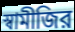
স্বামীজির